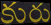
కురు